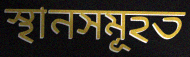
স্থানসমূহত